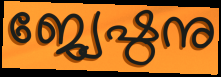
ജ്യേഷ്ഠനു